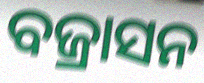
ବଜ୍ରାସନ